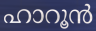
ഹാറൂൻ